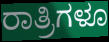
ರಾತ್ರಿಗಳೂ